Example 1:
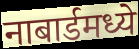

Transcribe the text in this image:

नाबार्डमध्ये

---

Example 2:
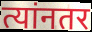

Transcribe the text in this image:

त्यांनतर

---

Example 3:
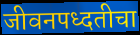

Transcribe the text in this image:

जीवनपध्दतीचा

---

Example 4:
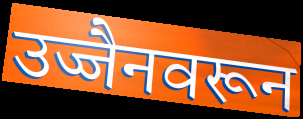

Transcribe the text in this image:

उज्जैनवरून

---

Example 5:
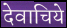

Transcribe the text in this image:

देवाचिये